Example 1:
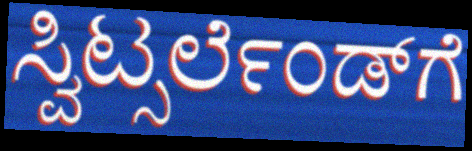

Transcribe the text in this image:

ಸ್ವಿಟ್ಸರ್ಲೆಂಡ್‌ಗೆ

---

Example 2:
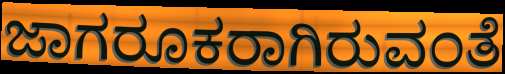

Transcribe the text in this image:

ಜಾಗರೂಕರಾಗಿರುವಂತೆ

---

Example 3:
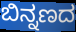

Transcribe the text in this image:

ಬಿನ್ನಣದ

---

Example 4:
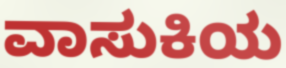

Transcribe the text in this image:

ವಾಸುಕಿಯ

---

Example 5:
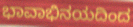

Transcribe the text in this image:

ಭಾವಾಭಿನಯದಿಂದ